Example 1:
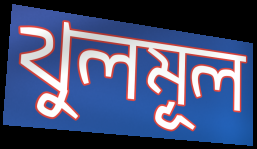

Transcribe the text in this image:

থুলমূল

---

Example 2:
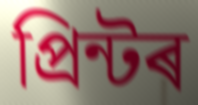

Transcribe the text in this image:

প্ৰিন্টৰ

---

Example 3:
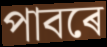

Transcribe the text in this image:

পাবৰে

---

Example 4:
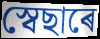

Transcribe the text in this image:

স্বেছাৰে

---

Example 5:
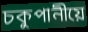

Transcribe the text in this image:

চকুপানীয়ে